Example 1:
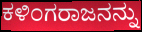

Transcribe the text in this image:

ಕಳಿಂಗರಾಜನನ್ನು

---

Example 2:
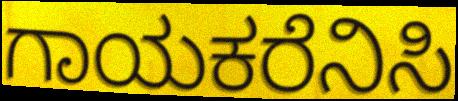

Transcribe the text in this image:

ಗಾಯಕರೆನಿಸಿ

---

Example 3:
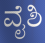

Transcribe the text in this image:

ವೈಶಿ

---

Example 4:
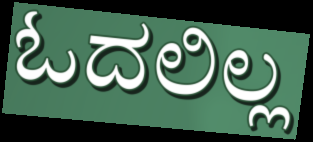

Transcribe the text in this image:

ಓದಲಿಲ್ಲ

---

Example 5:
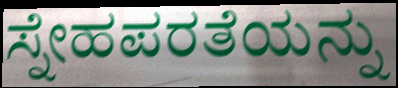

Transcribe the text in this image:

ಸ್ನೇಹಪರತೆಯನ್ನು